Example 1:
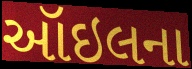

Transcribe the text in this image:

ઑઇલના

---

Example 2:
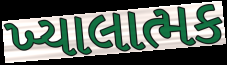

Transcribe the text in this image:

ખ્યાલાત્મક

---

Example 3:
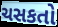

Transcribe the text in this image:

ચસકતો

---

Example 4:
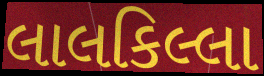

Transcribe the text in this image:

લાલકિલ્લા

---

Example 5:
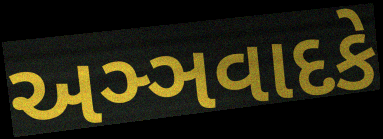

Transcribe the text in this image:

અઞ્ઞવાદકે